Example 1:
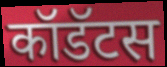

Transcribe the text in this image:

कॉडॅटस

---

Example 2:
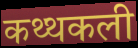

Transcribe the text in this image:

कथ्थकली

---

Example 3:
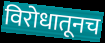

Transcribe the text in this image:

विरोधातूनच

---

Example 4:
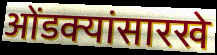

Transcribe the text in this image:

ओंडक्यांसारखे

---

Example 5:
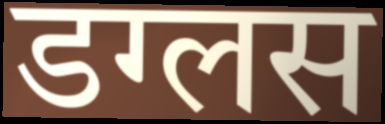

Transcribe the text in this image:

डग्लस